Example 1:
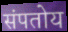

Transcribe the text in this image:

संपतोय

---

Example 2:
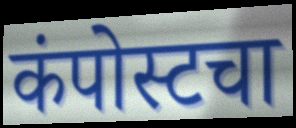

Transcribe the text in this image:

कंपोस्टचा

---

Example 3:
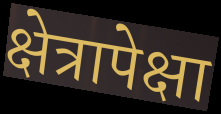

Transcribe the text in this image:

क्षेत्रापेक्षा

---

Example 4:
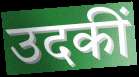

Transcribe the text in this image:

उदकीं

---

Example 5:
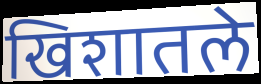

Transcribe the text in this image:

खिशातले